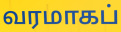
வரமாகப்